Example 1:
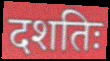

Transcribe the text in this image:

दशतिः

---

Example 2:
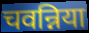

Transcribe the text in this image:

चवन्निया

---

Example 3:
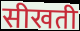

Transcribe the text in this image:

सीखती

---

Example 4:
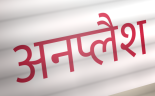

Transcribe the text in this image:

अनप्लैश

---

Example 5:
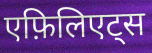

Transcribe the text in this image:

एफ़िलिएट्स